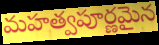
మహత్వపూర్ణమైన